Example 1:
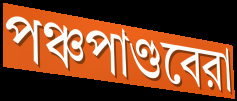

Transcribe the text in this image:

পঞ্চপাণ্ডবেরা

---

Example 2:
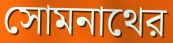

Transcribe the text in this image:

সোমনাথের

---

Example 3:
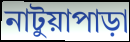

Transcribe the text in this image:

নাটুয়াপাড়া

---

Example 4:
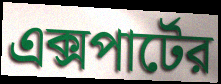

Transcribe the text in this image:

এক্সপার্টের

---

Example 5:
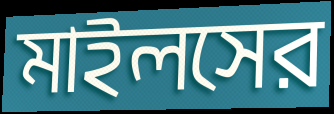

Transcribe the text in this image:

মাইলসের